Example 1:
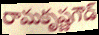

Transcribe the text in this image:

రామకృష్ణగౌడ్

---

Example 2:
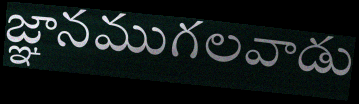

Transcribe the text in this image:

జ్ఞానముగలవాడు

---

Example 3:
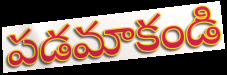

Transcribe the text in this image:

పడమాకండి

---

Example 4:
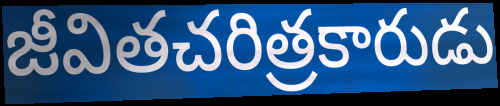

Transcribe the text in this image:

జీవితచరిత్రకారుడు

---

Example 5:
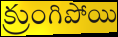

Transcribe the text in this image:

క్రుంగిపోయి